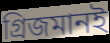
গ্রিজমানই